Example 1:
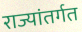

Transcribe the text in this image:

राज्यांतर्गत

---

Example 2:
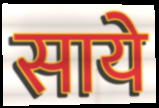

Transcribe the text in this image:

साये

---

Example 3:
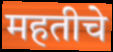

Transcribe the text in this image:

महतीचे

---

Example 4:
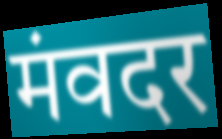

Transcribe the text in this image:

मंवदर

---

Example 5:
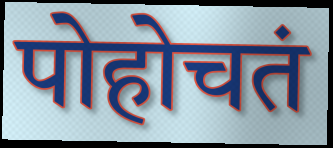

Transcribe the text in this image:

पोहोचतं